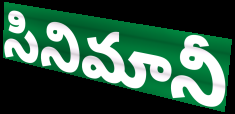
సినిమానీ